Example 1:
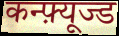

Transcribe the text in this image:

कन्फ़्यूज्ड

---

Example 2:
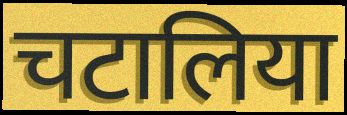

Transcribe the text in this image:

चटालिया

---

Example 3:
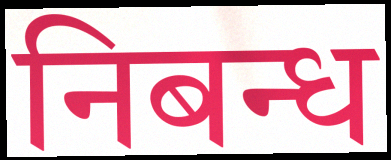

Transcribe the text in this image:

निबन्‍ध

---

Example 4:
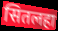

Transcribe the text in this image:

सितलहा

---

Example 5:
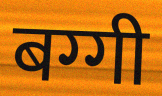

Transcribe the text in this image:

बग्‍गी